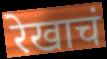
रेखाचं